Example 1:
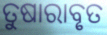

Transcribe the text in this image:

ତୁଷାରାବୃତ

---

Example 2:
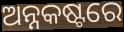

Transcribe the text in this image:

ଅନ୍ନକଷ୍ଟରେ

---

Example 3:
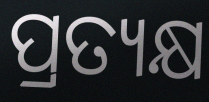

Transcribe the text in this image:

ପ୍ରତ୍ଯକ୍ଷ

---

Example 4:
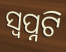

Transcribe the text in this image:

ସ୍ୱପ୍ନଟି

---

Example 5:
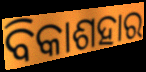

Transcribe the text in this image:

ବିକାଶହାର